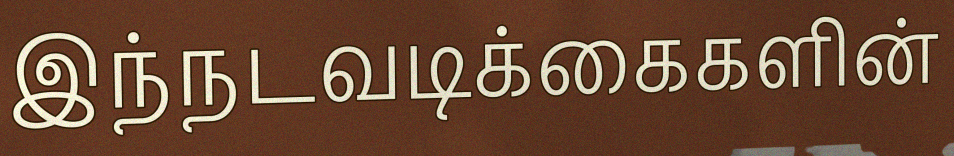
இந்நடவடிக்கைகளின்